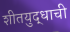
शीतयुद्धाची